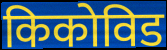
किकोविड